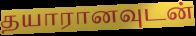
தயாரானவுடன்